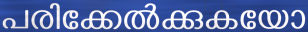
പരിക്കേൽക്കുകയോ